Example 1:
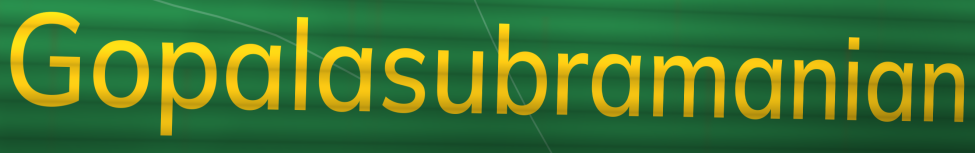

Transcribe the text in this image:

Gopalasubramanian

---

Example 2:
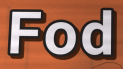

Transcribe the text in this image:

Fod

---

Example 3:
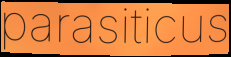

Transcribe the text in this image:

parasiticus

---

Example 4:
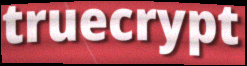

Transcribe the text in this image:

truecrypt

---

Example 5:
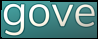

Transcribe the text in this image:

gove